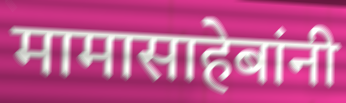
मामासाहेबांनी